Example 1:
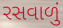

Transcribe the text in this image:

રસવાળું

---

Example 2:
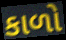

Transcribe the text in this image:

કાળો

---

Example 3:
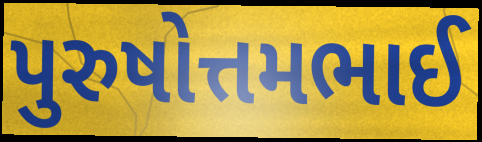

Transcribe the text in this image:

પુરુષોત્તમભાઈ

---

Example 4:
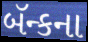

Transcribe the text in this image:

બૅન્કના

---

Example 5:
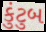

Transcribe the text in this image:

કુંટુબ